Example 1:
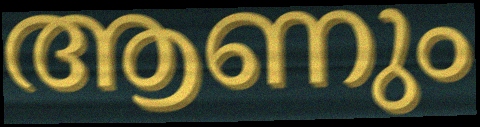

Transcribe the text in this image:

ആണും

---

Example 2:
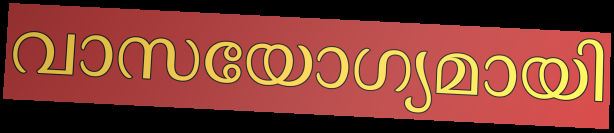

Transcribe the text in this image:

വാസയോഗ്യമായി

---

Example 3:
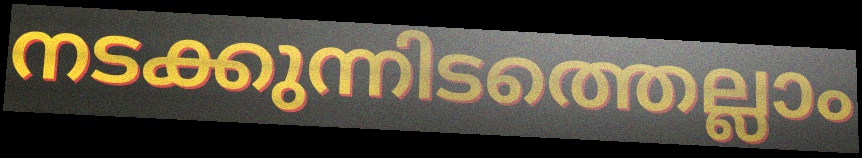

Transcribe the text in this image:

നടക്കുന്നിടത്തെല്ലാം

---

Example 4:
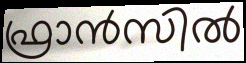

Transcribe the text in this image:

ഫ്രാൻസിൽ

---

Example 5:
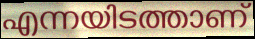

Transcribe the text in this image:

എന്നയിടത്താണ്